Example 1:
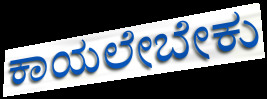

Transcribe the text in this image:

ಕಾಯಲೇಬೇಕು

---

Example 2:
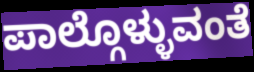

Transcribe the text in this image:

ಪಾಲ್ಗೊಳ್ಳುವಂತೆ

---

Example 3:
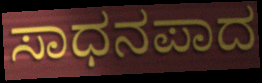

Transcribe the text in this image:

ಸಾಧನಪಾದ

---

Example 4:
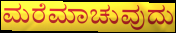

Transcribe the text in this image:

ಮರೆಮಾಚುವುದು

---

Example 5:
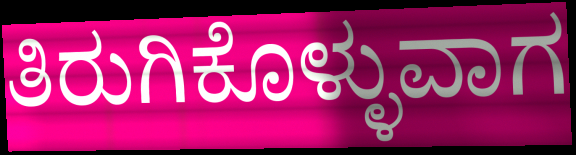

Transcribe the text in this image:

ತಿರುಗಿಕೊಳ್ಳುವಾಗ